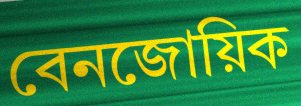
বেনজোয়িক